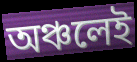
অঞ্চলেই